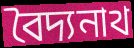
বৈদ্যনাথ